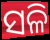
ସଳି